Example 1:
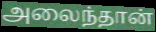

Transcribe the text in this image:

அலைந்தான்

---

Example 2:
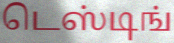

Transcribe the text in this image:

டெஸ்டிங்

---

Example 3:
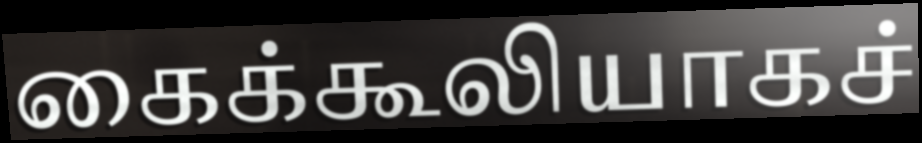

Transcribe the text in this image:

கைக்கூலியாகச்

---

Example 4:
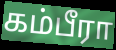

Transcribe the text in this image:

கம்பீரா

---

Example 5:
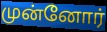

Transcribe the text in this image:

முன்னோர்